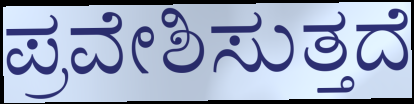
ಪ್ರವೇಶಿಸುತ್ತದೆ